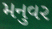
મનુવર